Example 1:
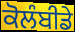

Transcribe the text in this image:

ਕੋਲੰਬੀਡੇ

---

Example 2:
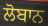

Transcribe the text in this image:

ਲੋਬਾਨ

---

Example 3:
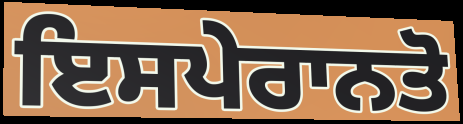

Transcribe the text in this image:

ਇਸਪੇਰਾਨਤੋ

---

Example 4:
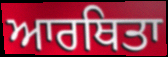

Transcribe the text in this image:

ਆਰਥਿਤਾ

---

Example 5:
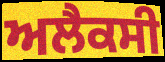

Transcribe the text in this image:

ਅਲੈਕਸੀ